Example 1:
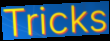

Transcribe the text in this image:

Tricks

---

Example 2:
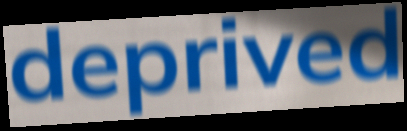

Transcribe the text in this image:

deprived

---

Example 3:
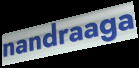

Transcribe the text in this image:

nandraaga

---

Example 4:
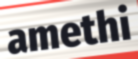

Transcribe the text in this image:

amethi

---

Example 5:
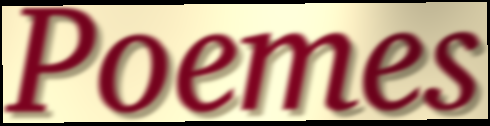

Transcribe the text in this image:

Poemes